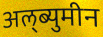
अल्ब्युमीन